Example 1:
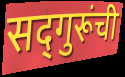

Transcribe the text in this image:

सद्‌गुरूंची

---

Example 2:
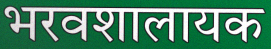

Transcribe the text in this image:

भरवशालायक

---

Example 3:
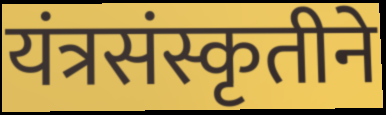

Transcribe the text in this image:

यंत्रसंस्कृतीने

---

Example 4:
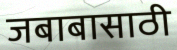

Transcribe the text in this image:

जबाबासाठी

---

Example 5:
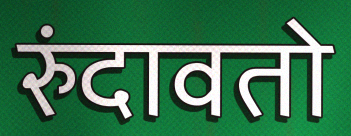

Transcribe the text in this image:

रुंदावतो